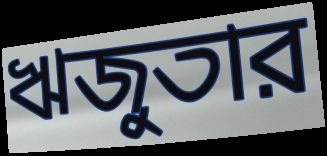
ঋজুতার